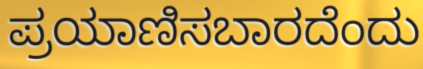
ಪ್ರಯಾಣಿಸಬಾರದೆಂದು